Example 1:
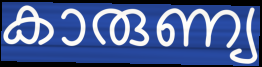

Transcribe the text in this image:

കാരുണ്യ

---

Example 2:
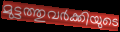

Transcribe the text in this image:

മുട്ടത്തുവർക്കിയുടെ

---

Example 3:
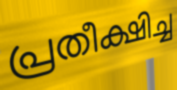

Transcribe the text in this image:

പ്രതീക്ഷിച്ച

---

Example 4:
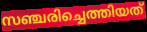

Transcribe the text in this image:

സഞ്ചരിച്ചെത്തിയത്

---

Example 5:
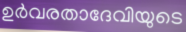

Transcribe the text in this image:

ഉർവരതാദേവിയുടെ